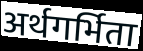
अर्थगर्भिता